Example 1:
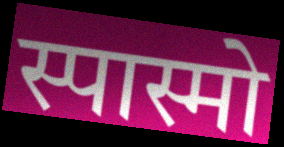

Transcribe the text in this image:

स्पास्मो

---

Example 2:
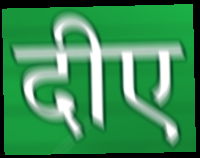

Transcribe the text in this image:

दीए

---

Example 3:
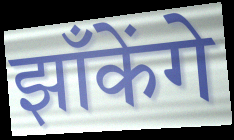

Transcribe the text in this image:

झाँकेंगे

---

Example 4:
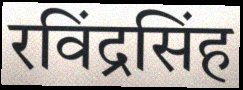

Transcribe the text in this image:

रविंद्रसिंह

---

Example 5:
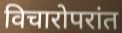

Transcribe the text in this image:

विचारोपरांत